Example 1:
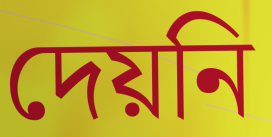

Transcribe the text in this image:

দেয়নি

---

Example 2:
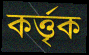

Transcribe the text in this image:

কর্ত্তৃক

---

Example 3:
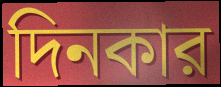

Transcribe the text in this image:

দিনকার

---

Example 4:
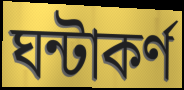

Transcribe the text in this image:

ঘন্টাকর্ণ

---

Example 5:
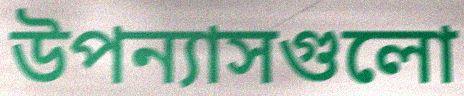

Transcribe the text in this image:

উপন্যাসগুলো